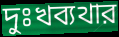
দুঃখব্যথার